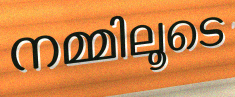
നമ്മിലൂടെ